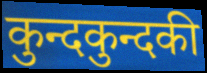
कुन्दकुन्दकी